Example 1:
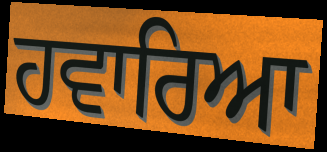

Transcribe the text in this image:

ਹਵਾਰਿਆ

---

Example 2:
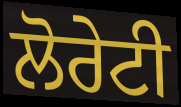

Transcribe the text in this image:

ਲੋਰੇਟੀ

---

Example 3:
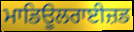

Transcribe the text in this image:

ਮਾਡਿਊਲਰਾਈਜ਼ਡ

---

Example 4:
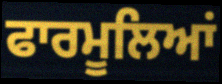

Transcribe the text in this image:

ਫਾਰਮੂਲਿਆਂ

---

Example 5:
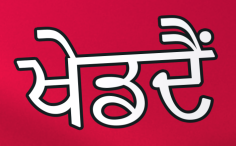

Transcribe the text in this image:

ਖੇਡਦੈਂ